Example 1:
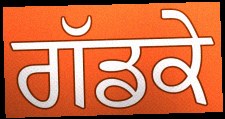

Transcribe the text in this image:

ਗੱਡਕੇ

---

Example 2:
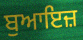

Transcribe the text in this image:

ਬੁਆਇਜ਼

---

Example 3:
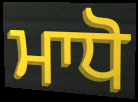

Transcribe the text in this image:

ਮਾਧੋ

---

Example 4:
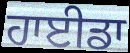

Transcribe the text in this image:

ਹਾਈਡਾ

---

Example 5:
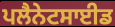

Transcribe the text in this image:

ਪਲੈਨੇਟਸਾਈਡ